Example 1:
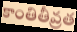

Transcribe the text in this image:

కాంతితీవ్రత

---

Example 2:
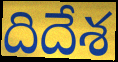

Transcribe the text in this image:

దిదేశ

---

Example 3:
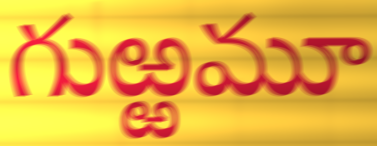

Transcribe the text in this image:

గుఱ్ఱమూ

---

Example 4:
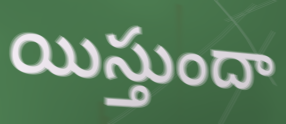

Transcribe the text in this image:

యిస్తుందా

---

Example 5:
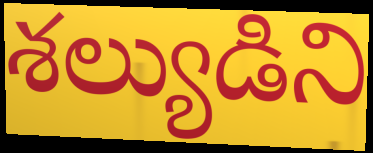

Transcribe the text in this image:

శల్యుడిని